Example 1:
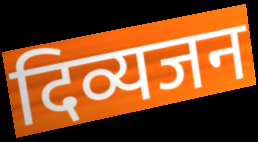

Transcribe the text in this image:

दिव्यजन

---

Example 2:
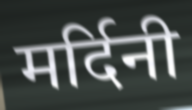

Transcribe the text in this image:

मर्दिनी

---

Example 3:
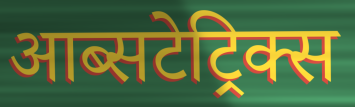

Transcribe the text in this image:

आब्सटेट्रिक्स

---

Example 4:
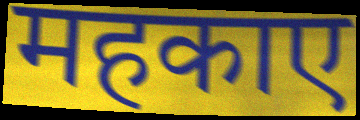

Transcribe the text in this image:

महकाए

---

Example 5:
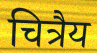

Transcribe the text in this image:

चित्रैय